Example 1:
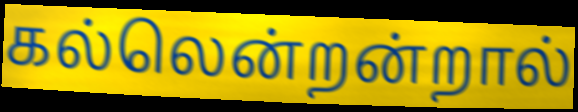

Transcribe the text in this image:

கல்லென்றன்றால்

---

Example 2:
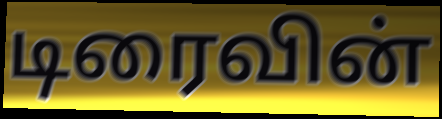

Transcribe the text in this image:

டிரைவின்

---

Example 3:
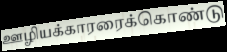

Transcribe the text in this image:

ஊழியக்காரரைக்கொண்டு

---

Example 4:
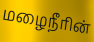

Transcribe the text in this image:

மழைநீரின்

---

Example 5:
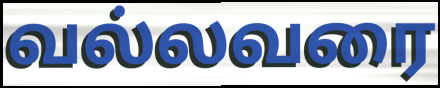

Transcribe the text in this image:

வல்லவரை